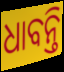
ଧାବନ୍ତି